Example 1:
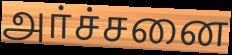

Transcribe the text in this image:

அர்ச்சனை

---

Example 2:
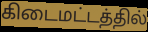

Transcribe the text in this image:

கிடைமட்டத்தில்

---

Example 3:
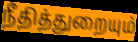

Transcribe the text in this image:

நீதித்துறையும்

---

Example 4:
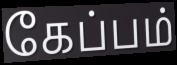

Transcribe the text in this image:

கேப்பம்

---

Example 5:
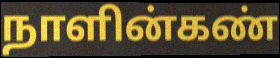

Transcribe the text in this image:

நாளின்கண்